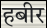
हबीर